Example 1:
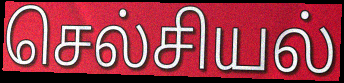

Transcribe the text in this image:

செல்சியல்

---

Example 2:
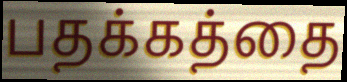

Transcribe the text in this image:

பதக்கத்தை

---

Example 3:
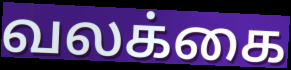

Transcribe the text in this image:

வலக்கை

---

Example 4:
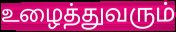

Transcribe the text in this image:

உழைத்துவரும்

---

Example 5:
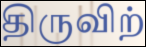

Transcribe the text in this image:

திருவிற்